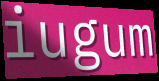
iugum